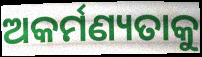
ଅକର୍ମଣ୍ୟତାକୁ